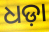
ଧଡ଼ା